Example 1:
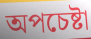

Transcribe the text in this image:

অপচেষ্টা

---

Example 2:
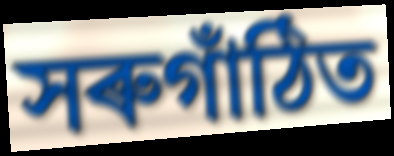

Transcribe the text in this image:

সৰুগাঁঠিত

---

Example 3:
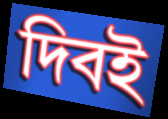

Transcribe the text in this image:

দিবই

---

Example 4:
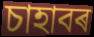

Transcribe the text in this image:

চাহাবৰ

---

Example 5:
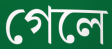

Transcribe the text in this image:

গেলে